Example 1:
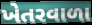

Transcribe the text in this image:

ખેતરવાળા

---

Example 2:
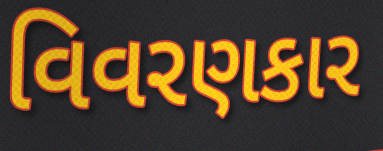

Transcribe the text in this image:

વિવરણકાર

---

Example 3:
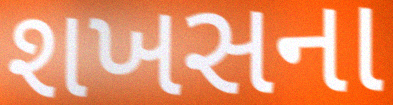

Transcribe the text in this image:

શખસના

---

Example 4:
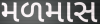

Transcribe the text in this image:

મળમાસ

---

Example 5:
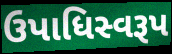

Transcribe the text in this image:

ઉપાધિસ્વરૂપ